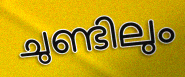
ചുണ്ടിലും